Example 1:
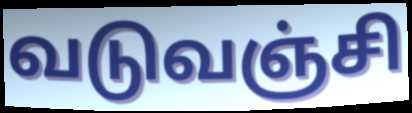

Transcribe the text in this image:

வடுவஞ்சி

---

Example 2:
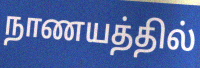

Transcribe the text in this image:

நாணயத்தில்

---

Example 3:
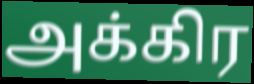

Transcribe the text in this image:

அக்கிர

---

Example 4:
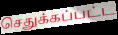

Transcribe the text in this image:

செதுக்கப்பட்ட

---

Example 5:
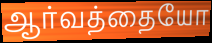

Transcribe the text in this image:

ஆர்வத்தையோ